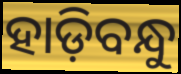
ହାଡ଼ିବନ୍ଧୁ